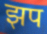
झप